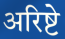
अरिष्टे